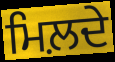
ਮਿਲ਼ਦੇ